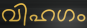
വിഹഗം